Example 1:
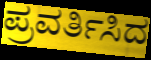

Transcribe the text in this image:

ಪ್ರವರ್ತಿಸಿದ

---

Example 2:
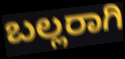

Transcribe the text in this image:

ಬಲ್ಲರಾಗಿ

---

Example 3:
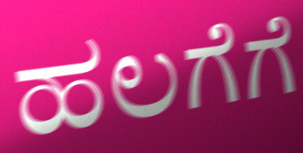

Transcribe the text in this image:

ಹಲಗೆಗೆ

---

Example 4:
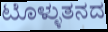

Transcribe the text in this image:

ಟೊಳ್ಳುತನದ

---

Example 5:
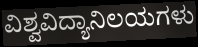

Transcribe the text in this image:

ವಿಶ್ವವಿದ್ಯಾನಿಲಯಗಳು